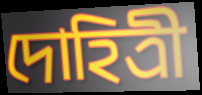
দোহিত্রী